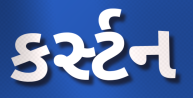
કર્સ્ટન